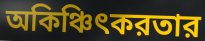
অকিঞ্চিৎকরতার